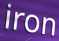
iron